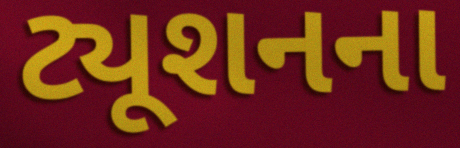
ટ્યૂશનના